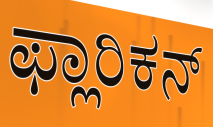
ಫ್ಲಾರಿಕನ್